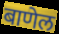
बाणेल